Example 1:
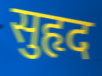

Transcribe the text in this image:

सुहृद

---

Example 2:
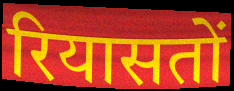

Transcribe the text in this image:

रियासतों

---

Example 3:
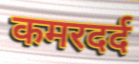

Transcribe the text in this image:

कमरदर्द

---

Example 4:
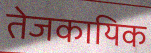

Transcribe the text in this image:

तेजकायिक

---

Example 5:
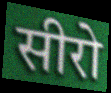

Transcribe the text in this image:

सीरो